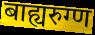
बाह्यरुग्ण